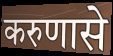
करुणासे